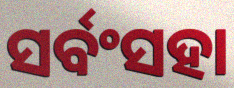
ସର୍ବଂସହା